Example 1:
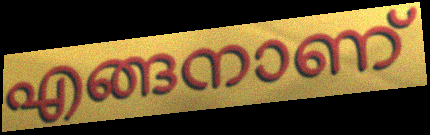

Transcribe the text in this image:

എങ്ങനാണ്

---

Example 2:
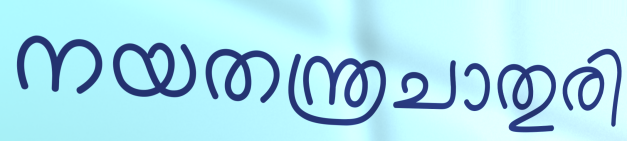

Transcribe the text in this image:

നയതന്ത്രചാതുരി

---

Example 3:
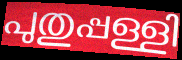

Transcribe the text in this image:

പുതുപ്പള്ളി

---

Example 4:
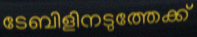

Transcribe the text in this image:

ടേബിളിനടുത്തേക്ക്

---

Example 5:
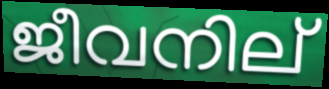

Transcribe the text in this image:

ജീവനില്